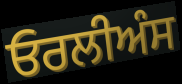
ਓਰਲੀਅੰਸ